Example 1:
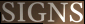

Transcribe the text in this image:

SIGNS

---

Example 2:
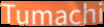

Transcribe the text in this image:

Tumachi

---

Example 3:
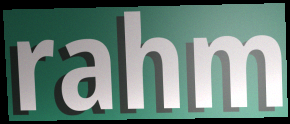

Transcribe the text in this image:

rahm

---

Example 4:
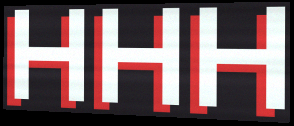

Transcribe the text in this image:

HHH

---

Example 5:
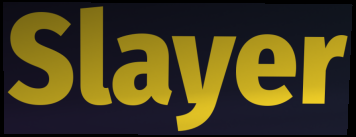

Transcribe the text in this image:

Slayer